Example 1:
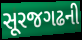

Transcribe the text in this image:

સૂરજગઢની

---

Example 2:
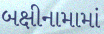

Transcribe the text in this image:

બક્ષીનામામાં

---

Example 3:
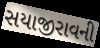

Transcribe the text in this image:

સયાજીરાવની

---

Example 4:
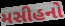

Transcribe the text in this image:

મસીહનો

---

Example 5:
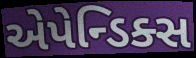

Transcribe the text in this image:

એપેન્ડિક્સ